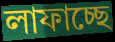
লাফাচ্ছে